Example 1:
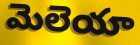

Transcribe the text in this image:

మెలెయా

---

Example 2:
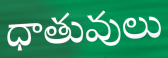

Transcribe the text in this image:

ధాతువులు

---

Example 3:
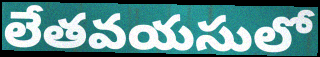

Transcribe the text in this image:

లేతవయసులో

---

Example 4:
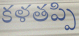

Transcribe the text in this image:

కళతప్పి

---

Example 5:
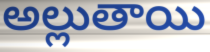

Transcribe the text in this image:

అల్లుతాయి